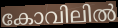
കോവിലിൽ